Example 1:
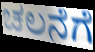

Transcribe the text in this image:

ಚಲನೆಗೆ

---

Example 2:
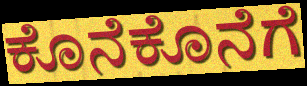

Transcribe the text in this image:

ಕೊನೆಕೊನೆಗೆ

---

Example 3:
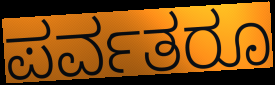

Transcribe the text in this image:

ಪರ್ವತರೂ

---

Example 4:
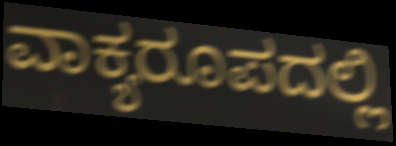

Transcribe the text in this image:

ವಾಕ್ಯರೂಪದಲ್ಲಿ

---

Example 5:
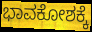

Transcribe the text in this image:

ಭಾವಕೋಶಕ್ಕೆ